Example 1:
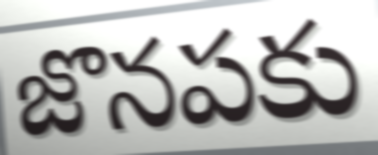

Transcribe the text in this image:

జొనపకు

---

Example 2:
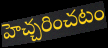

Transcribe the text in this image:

హెచ్చరించటం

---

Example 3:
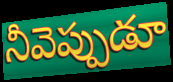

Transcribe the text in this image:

నీవెప్పుడూ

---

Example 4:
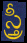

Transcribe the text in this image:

స్త్రీ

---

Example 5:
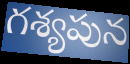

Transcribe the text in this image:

గశ్యపున